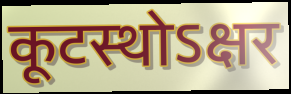
कूटस्थोऽक्षर